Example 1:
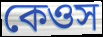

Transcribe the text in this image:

কেওস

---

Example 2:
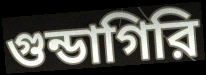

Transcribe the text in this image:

গুন্ডাগিরি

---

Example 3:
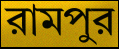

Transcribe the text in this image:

রামপুর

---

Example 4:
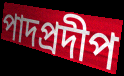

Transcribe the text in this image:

পাদপ্রদীপ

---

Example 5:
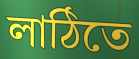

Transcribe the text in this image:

লাঠিতে